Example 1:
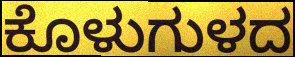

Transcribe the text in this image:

ಕೊಳುಗುಳದ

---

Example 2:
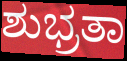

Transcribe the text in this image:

ಶುಭ್ರತಾ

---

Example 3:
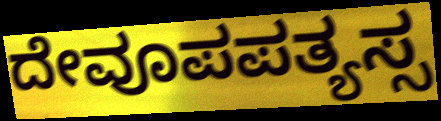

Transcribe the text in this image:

ದೇವೂಪಪತ್ಯಸ್ಸ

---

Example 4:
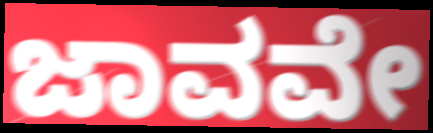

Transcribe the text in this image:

ಜಾವವೇ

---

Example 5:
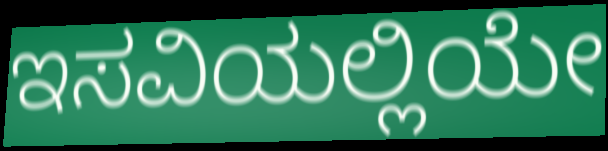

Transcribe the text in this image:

ಇಸವಿಯಲ್ಲಿಯೇ